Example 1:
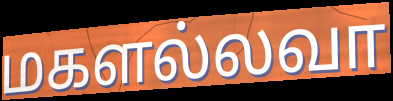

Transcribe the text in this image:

மகளல்லவா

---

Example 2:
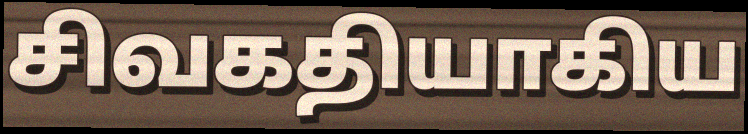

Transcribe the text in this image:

சிவகதியாகிய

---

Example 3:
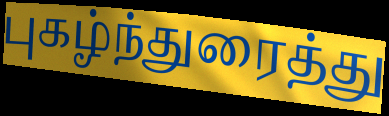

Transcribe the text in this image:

புகழ்ந்துரைத்து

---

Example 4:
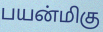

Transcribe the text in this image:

பயன்மிகு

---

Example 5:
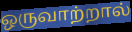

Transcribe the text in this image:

ஒருவாற்றால்